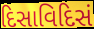
દિસાવિદિસં